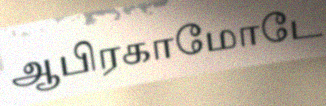
ஆபிரகாமோடே